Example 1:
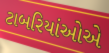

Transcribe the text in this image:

ટાબરિયાંઓએ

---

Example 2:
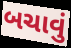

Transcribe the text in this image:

બચાવું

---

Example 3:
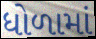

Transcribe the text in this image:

ધોળામાં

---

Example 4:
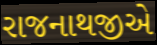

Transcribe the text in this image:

રાજનાથજીએ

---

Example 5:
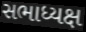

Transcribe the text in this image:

સભાધ્યક્ષ